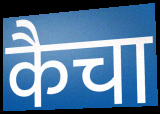
कैचा